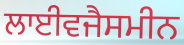
ਲਾਈਵਜੈਸਮੀਨ